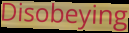
Disobeying